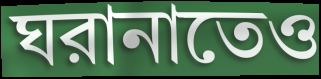
ঘরানাতেও